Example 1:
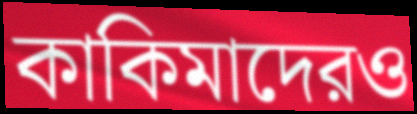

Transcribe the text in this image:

কাকিমাদেরও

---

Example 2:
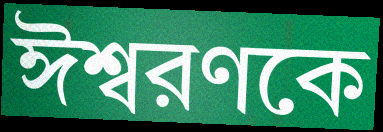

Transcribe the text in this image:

ঈশ্বরণকে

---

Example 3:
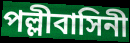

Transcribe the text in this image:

পল্লীবাসিনী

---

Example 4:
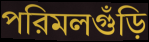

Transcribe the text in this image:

পরিমলগুঁড়ি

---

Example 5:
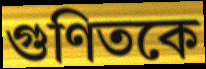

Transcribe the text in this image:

গুণিতকে